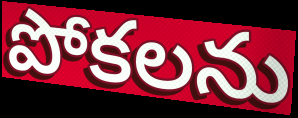
పోకలను